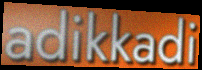
adikkadi